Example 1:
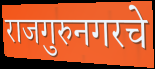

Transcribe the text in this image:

राजगुरुनगरचे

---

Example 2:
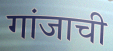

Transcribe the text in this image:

गांजाची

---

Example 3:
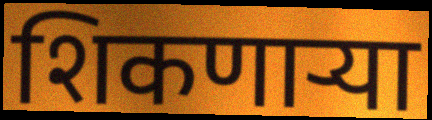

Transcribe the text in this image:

शिकणाऱ्या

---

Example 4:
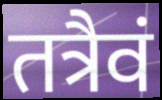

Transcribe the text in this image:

तत्रैवं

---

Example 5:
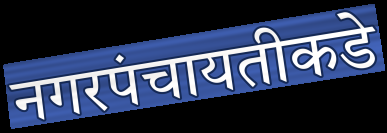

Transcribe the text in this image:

नगरपंचायतीकडे